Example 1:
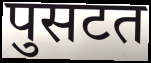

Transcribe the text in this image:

पुसटत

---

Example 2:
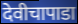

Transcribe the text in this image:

देवीचापाडा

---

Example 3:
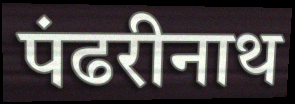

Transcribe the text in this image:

पंढरीनाथ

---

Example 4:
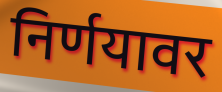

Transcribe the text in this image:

निर्णयावर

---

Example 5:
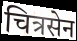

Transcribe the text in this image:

चित्रसेन